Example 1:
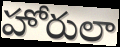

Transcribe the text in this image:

హోరులా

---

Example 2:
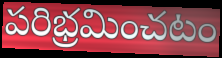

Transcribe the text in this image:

పరిభ్రమించటం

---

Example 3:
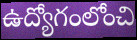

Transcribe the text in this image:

ఉద్యోగంలోంచి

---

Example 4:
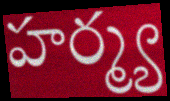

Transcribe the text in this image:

హర్మ్య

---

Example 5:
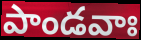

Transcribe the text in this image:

పాండవాః